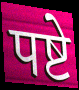
पष्टे